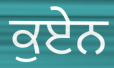
ਕੁਏਨ